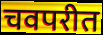
चवपरीत